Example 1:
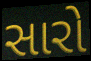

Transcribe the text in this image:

સારો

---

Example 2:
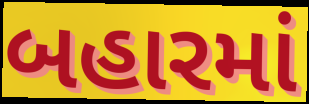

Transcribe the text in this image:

બહારમાં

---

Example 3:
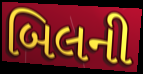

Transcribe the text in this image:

બિલની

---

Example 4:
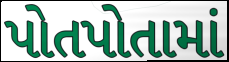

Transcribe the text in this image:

પોતપોતામાં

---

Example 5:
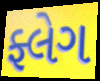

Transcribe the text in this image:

ફ્લેગ